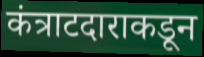
कंत्राटदाराकडून